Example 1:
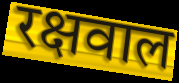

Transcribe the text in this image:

रक्षवाल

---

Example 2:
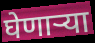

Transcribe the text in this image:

घेणाऱ्या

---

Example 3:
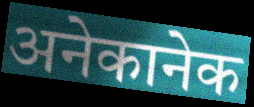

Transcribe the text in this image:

अनेकानेक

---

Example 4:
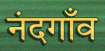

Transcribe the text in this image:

नंदगाँव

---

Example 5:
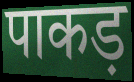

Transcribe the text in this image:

पाकड़